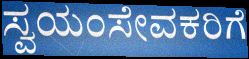
ಸ್ವಯಂಸೇವಕರಿಗೆ